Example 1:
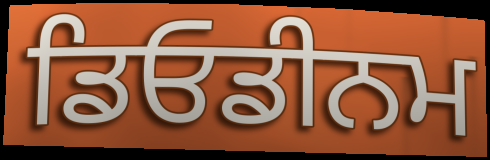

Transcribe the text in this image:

ਡਿਓਡੀਨਮ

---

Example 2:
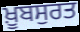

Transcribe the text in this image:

ਖ਼ੂਬਸੁਰਤ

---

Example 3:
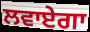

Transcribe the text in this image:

ਲਵਾਏਗਾ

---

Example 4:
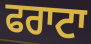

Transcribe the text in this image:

ਫਰਾਟਾ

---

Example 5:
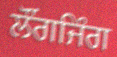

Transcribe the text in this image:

ਲੌਂਗਜਿੰਗ